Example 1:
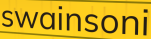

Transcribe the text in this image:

swainsoni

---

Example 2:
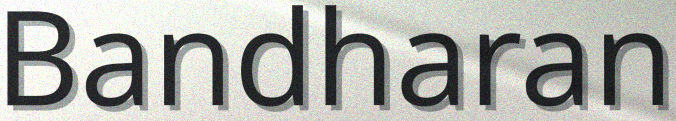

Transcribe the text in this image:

Bandharan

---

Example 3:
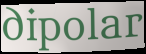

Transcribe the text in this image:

dipolar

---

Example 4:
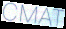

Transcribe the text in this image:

CMAT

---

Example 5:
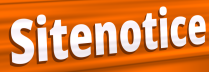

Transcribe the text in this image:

Sitenotice